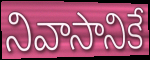
నివాసానికే